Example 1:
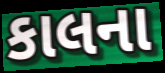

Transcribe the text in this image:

કાલના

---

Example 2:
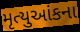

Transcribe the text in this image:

મૃત્યુઆંકના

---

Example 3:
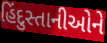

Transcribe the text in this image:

હિંદુસ્તાનીઓને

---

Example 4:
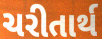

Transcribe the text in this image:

ચરીતાર્થ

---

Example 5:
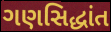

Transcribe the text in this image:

ગણસિદ્ધાંત